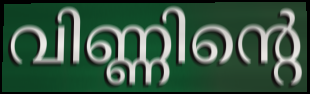
വിണ്ണിന്റെ